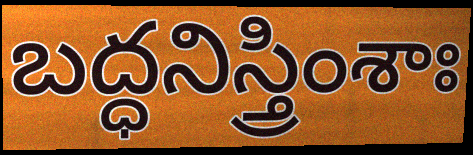
బద్ధనిస్త్రింశాః